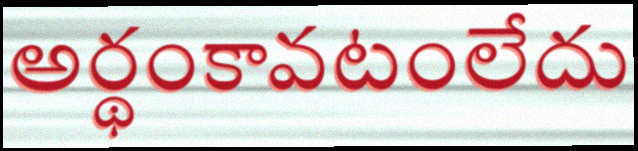
అర్థంకావటంలేదు